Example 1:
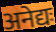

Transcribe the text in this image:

अनेद्यः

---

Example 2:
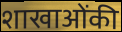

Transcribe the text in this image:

शाखाओंकी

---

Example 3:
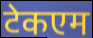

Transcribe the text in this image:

टेकएम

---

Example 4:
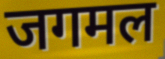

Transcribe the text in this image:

जगमल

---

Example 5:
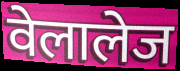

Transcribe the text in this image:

वेलालेज